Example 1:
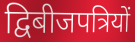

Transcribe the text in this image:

द्विबीजपत्रियों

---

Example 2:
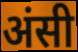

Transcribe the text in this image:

अंसी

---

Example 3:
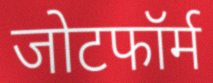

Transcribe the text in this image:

जोटफॉर्म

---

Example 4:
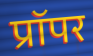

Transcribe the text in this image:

प्रॉपर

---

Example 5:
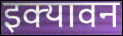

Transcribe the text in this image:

इक्‍यावन